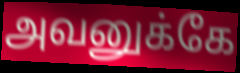
அவனுக்கே